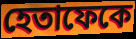
হেতাফেকে